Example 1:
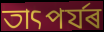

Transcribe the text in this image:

তাৎপৰ্যৰ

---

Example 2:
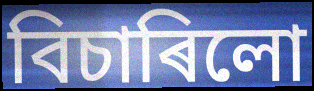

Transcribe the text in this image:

বিচাৰিলো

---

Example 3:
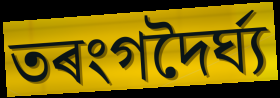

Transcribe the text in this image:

তৰংগদৈৰ্ঘ্য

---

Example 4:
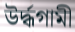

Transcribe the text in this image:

উৰ্দ্ধগামী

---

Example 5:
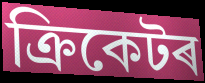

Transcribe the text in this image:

ক্ৰিকেটৰ